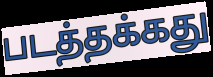
படத்தக்கது